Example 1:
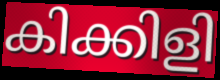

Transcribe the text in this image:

കിക്കിളി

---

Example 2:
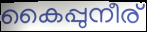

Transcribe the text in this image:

കൈപ്പുനീര്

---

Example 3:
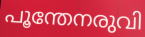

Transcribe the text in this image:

പൂന്തേനരുവി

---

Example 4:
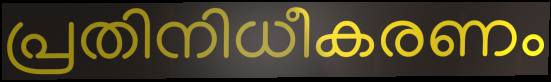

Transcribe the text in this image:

പ്രതിനിധീകരണം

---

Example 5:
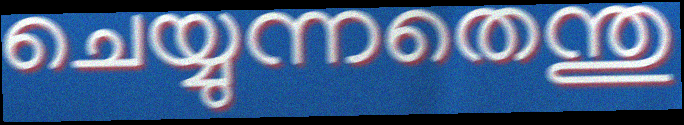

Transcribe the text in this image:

ചെയ്യുന്നതെന്തു